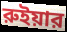
রুইয়ার